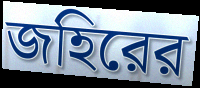
জহিরের